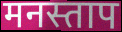
मनस्ताप